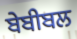
ਬੇਬੀਬਲ